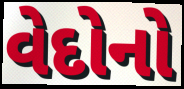
વેદોનો